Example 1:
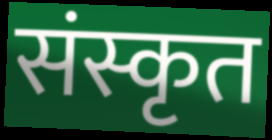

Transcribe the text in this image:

संस्‍कृत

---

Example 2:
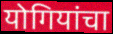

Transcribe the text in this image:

योगियांचा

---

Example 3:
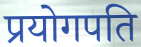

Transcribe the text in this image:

प्रयोगपति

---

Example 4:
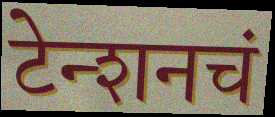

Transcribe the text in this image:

टेन्शनचं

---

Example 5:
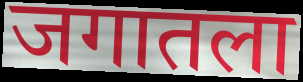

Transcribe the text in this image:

जगातला